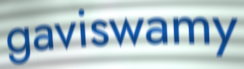
gaviswamy